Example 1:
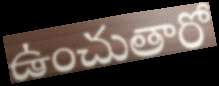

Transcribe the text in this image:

ఉంచుతారో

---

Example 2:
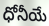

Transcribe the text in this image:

ధోనీయే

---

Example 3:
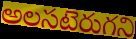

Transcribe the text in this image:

అలసటెరుగని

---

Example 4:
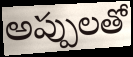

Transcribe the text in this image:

అప్పులతో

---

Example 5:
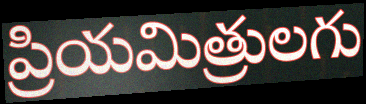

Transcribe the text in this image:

ప్రియమిత్రులగు